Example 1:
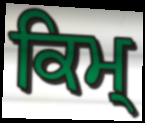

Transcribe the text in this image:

ਕਿਮ੍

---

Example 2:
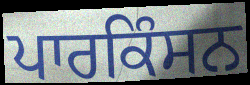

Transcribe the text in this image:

ਪਾਰਕਿੰਸਨ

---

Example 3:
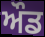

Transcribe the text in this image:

ਔਡ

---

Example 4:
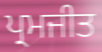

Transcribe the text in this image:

ਪ੍ਰਮਜੀਤ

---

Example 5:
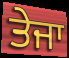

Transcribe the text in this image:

ਤੇਜਾ